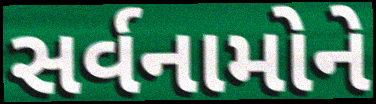
સર્વનામોને